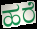
ಹರೆ